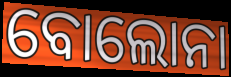
ବୋଲୋନା